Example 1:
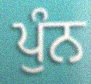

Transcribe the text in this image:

ਪੁੰਨ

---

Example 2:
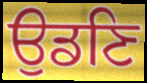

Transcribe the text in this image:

ਉਡਣਿ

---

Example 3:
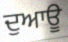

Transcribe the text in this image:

ਦੁਆਊ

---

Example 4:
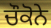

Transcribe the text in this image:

ਚੌਕੋਨੇ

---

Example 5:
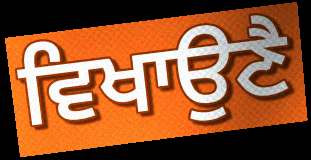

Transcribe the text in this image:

ਵਿਖਾਉਣੈ